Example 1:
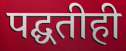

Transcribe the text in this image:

पद्घतीही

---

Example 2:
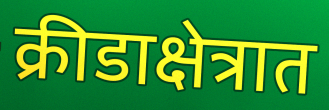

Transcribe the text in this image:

क्रीडाक्षेत्रात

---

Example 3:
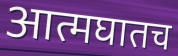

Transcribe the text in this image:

आत्मघातच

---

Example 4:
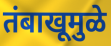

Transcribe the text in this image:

तंबाखूमुळे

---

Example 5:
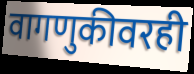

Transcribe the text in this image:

वागणुकीवरही